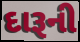
દારૂની